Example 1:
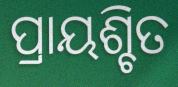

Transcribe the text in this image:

ପ୍ରାୟଶ୍ଚିତ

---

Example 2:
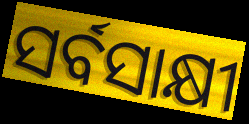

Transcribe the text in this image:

ସର୍ବସାକ୍ଷୀ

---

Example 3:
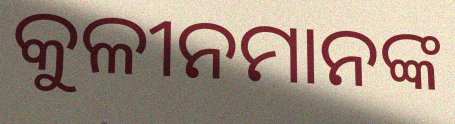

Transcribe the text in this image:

କୁଳୀନମାନଙ୍କ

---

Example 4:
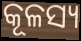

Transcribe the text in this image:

କୂଳସ୍ଯ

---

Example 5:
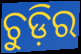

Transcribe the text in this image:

ଚୁଡ଼ିର